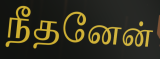
நீதனேன்